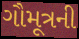
ગૌમૂત્રની